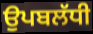
ਉਪਬਲੱਧੀ